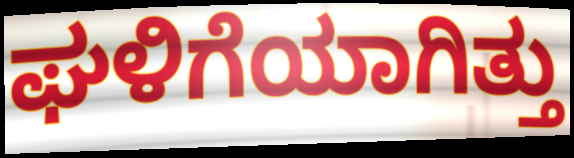
ಘಳಿಗೆಯಾಗಿತ್ತು